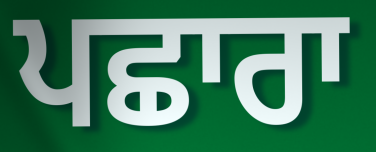
ਪਛਾਰਾ